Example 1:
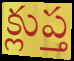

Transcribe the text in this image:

క్లుప్త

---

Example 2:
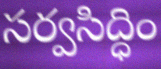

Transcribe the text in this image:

సర్వసిద్ధిం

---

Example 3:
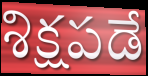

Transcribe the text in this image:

శిక్షపడే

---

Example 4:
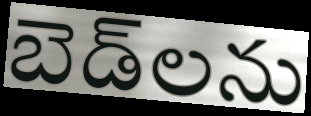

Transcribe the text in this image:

బెడ్‌లను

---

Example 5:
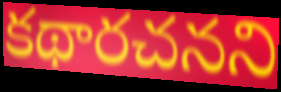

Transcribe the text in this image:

కథారచనని